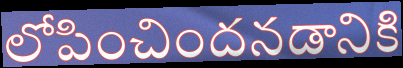
లోపించిందనడానికి